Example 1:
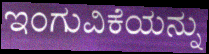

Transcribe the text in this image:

ಇಂಗುವಿಕೆಯನ್ನು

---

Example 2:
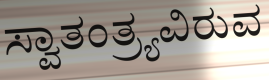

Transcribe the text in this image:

ಸ್ವಾತಂತ್ರ್ಯವಿರುವ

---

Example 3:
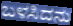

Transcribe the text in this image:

ಬಳಸಿದನು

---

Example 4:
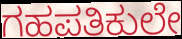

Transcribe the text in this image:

ಗಹಪತಿಕುಲೇ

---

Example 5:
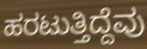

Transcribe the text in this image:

ಹರಟುತ್ತಿದ್ದೆವು